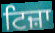
ਟਿਜ਼ਾ